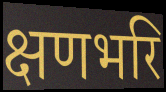
क्षणभरि